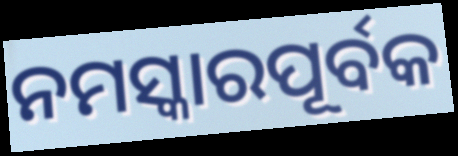
ନମସ୍କାରପୂର୍ବକ